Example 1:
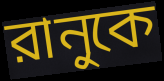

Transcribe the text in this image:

রানুকে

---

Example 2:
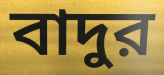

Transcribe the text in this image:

বাদুর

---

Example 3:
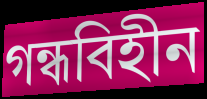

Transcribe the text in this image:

গন্ধবিহীন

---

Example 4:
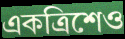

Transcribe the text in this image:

একত্রিশেও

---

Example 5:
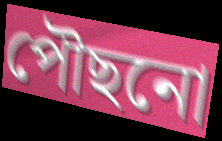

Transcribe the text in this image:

পৌছনো